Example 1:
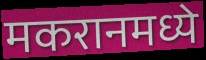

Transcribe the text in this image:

मकरानमध्ये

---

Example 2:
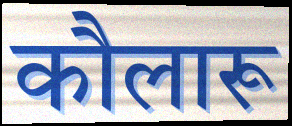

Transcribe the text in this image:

कौलारू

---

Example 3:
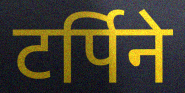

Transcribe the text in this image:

टर्पिने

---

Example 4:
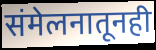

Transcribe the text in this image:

संमेलनातूनही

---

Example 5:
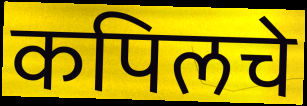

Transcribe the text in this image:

कपिलचे